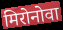
मिरोनोवा